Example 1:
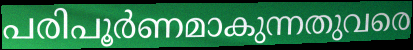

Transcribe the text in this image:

പരിപൂർണമാകുന്നതുവരെ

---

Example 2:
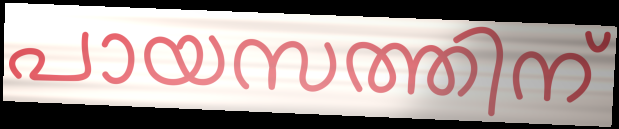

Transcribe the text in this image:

പായസത്തിന്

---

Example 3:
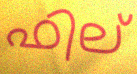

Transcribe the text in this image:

ഫില്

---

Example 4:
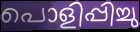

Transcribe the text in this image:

പൊളിപ്പിച്ചു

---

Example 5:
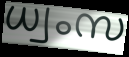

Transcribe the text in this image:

ധ്വംസ